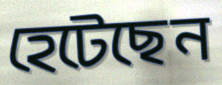
হেটেছেন